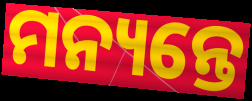
ମନ୍ୟନ୍ତେ